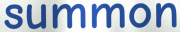
summon